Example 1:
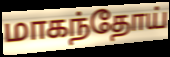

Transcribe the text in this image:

மாகந்தோய்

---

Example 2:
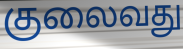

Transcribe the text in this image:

குலைவது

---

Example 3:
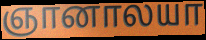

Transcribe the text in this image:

ஞானாலயா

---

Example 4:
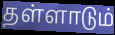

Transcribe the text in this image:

தள்ளாடும்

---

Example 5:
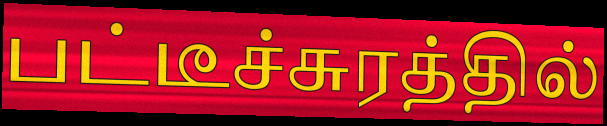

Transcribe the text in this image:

பட்டீச்சுரத்தில்